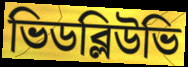
ভিডব্লিউভি